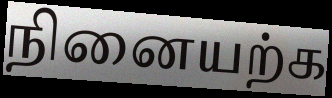
நினையற்க